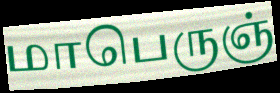
மாபெருஞ்